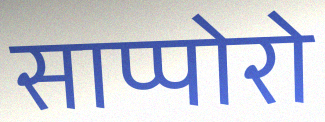
साप्पोरो